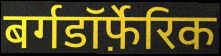
बर्गडॉर्फ़ेरिक